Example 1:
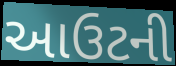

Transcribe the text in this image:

આઉટની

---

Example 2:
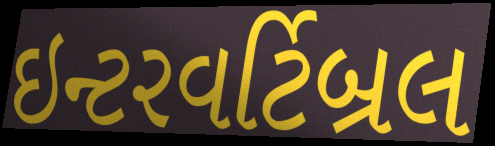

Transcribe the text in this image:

ઇન્ટરવર્ટિબ્રલ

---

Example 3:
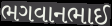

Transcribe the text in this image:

ભગવાનભાઈ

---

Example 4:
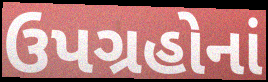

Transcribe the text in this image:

ઉપગ્રહોનાં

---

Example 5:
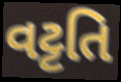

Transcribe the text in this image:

વટ્ટતિ